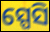
ସ୍ପେସି